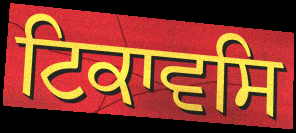
ਟਿਕਾਵਸਿ